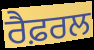
ਰੈਫ਼ਰਲ